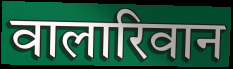
वालारिवान